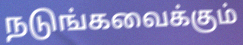
நடுங்கவைக்கும்